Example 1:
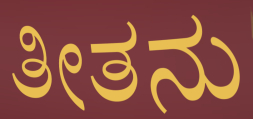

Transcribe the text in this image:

ತೀತನು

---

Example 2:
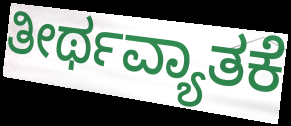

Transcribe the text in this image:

ತೀರ್ಥವ್ಯಾತಕೆ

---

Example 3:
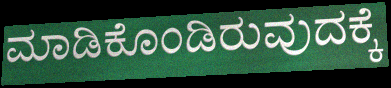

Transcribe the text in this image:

ಮಾಡಿಕೊಂಡಿರುವುದಕ್ಕೆ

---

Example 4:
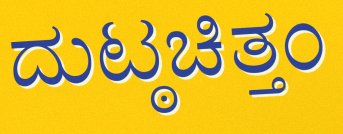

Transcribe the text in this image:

ದುಟ್ಠಚಿತ್ತಂ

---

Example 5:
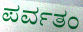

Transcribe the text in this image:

ಪರ್ವತಂ